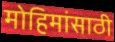
मोहिमांसाठी